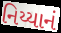
નિય્યાનં